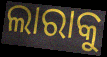
ଲାରାକୁ